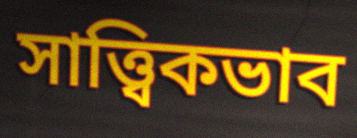
সাত্ত্বিকভাব